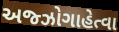
અજ્ઝોગાહેત્વા